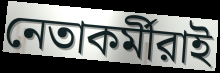
নেতাকর্মীরাই